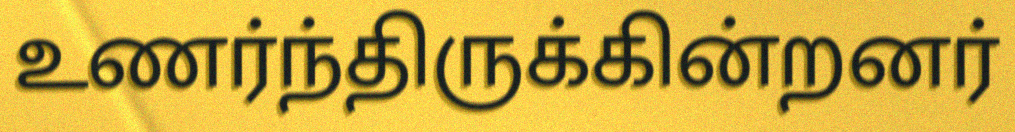
உணர்ந்திருக்கின்றனர்